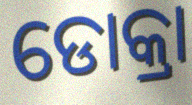
ଡୋକ୍ରା